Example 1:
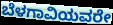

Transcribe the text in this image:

ಬೆಳಗಾವಿಯವರೇ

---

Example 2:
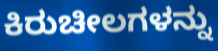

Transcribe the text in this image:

ಕಿರುಚೀಲಗಳನ್ನು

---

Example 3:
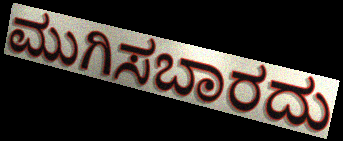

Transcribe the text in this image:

ಮುಗಿಸಬಾರದು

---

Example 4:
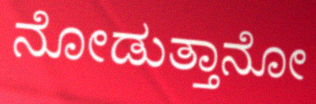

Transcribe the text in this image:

ನೋಡುತ್ತಾನೋ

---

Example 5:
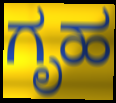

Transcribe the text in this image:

ಗೃಹ